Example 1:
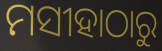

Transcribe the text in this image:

ମସୀହାଠାରୁ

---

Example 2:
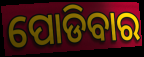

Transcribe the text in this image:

ପୋଡିବାର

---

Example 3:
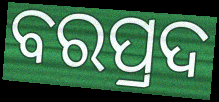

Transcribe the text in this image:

ବରପ୍ରଦ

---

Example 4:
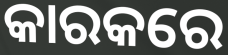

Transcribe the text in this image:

କାରକରେ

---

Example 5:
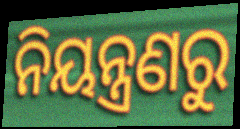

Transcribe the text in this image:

ନିୟନ୍ତ୍ରଣରୁ